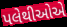
પલેથીઓએ